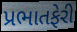
પ્રભાતફેરી